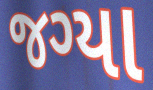
જગ્યા